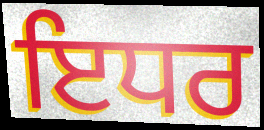
ਇਧਰ